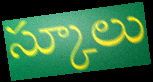
స్కూలు